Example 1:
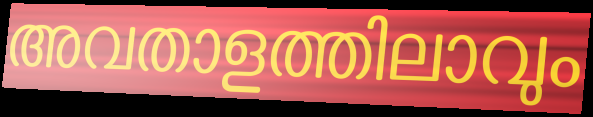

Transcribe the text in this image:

അവതാളത്തിലാവും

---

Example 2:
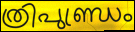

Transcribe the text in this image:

ത്രിപുണ്ഡ്രം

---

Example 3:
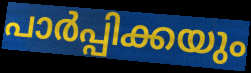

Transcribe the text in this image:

പാർപ്പിക്കയും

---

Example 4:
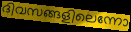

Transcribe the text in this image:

ദിവസങ്ങളിലെന്നോ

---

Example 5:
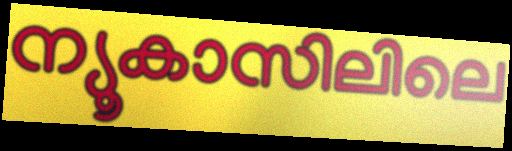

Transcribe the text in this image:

ന്യൂകാസിലിലെ